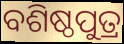
ବଶିଷ୍ଠପୁତ୍ର